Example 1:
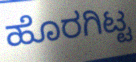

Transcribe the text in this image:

ಹೊರಗಿಟ್ಟ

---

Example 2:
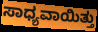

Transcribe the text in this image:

ಸಾಧ್ಯವಾಯಿತ್ತು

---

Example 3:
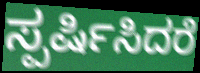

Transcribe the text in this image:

ಸ್ಪರ್ಷಿಸಿದರೆ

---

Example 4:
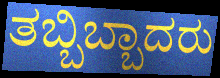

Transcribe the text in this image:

ತಬ್ಬಿಬ್ಬಾದರು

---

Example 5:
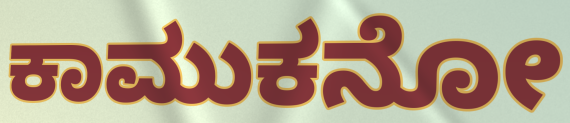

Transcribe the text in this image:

ಕಾಮುಕನೋ